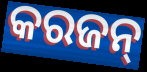
କରଜନ୍